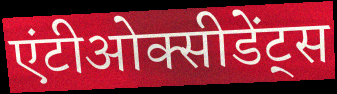
एंटीओक्सीडेंट्स